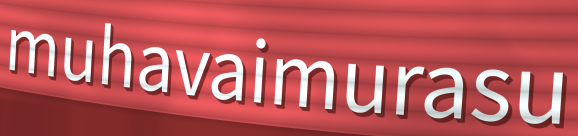
muhavaimurasu